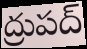
ద్రుపద్